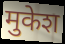
मुकेश